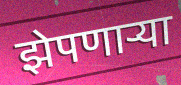
झेपणार्‍या